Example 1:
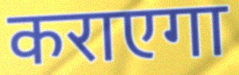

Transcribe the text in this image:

कराएगा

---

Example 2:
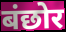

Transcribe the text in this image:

बंछोर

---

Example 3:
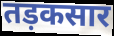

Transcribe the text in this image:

तड़कसार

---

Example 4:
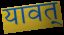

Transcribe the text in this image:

यावत्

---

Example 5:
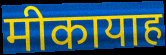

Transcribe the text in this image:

मीकायाह